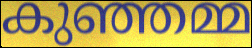
കുഞ്ഞമ്മ